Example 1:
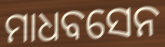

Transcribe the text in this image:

ମାଧବସେନ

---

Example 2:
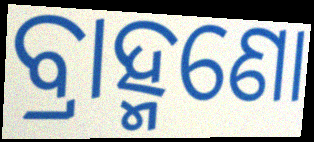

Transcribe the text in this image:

ବ୍ରାହ୍ମଣୋ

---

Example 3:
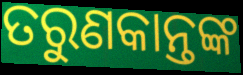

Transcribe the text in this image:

ତରୁଣକାନ୍ତଙ୍କ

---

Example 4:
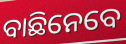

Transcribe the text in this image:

ବାଛିନେବେ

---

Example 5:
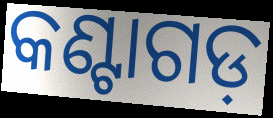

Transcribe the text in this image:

କଣ୍ଟାଗଡ଼